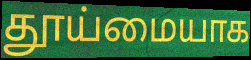
தூய்மையாக